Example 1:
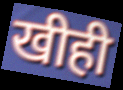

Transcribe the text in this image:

खीही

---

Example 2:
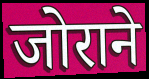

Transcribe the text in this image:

जोराने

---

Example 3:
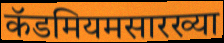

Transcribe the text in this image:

कॅडमियमसारख्या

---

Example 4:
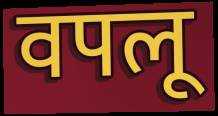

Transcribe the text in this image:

वपलू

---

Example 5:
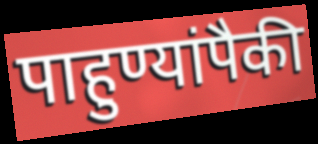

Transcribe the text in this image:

पाहुण्यांपैकी